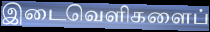
இடைவெளிகளைப்